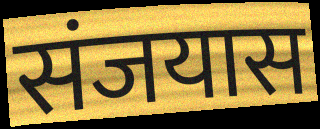
संजयास